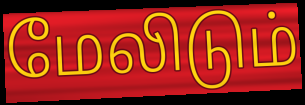
மேலிடும்